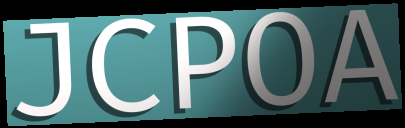
JCPOA